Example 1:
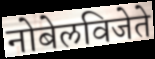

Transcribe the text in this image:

नोबेलविजेते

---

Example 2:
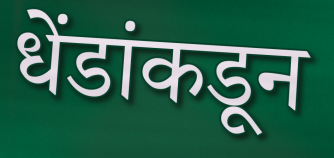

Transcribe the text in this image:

धेंडांकडून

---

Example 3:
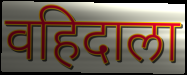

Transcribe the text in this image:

वहिदाला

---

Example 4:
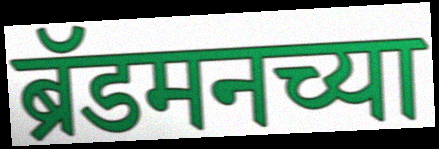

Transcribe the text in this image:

ब्रॅडमनच्या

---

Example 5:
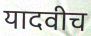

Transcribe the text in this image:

यादवीच